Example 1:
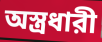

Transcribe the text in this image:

অস্ত্রধারী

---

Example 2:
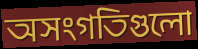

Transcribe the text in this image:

অসংগতিগুলো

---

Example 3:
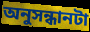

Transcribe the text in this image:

অনুসন্ধানটা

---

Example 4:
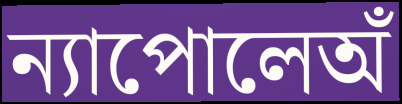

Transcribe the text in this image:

ন্যাপোলেঅঁ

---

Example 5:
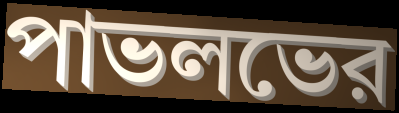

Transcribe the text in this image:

পাভলভের